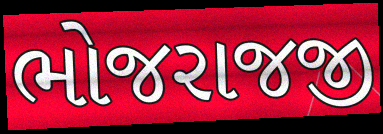
ભોજરાજજી